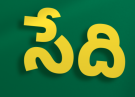
సేది